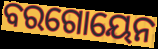
ବରଗୋୟେନ